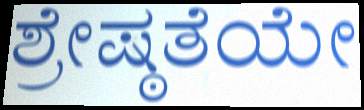
ಶ್ರೇಷ್ಠತೆಯೇ